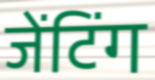
जेंटिंग